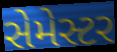
સેમેસ્ટર